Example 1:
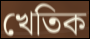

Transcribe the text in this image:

খেতিক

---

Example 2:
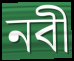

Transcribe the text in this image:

নবী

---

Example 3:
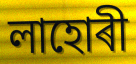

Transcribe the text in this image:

লাহোৰী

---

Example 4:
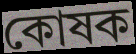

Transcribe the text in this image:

কোষক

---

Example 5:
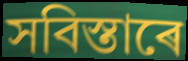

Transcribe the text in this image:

সবিস্তাৰে